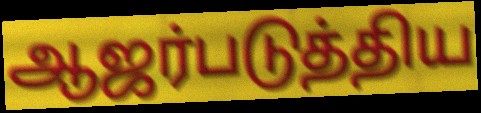
ஆஜர்படுத்திய